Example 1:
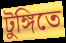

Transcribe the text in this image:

টুঙ্গিতে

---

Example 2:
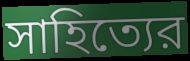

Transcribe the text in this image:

সাহিত্যের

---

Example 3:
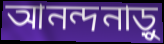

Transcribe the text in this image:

আনন্দনাড়ু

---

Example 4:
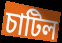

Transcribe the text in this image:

চাটিল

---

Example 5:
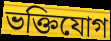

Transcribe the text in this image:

ভক্তিযোগ